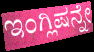
ಇಂಗ್ಲಿಷನ್ನೇ